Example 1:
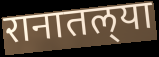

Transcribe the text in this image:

रानातल्या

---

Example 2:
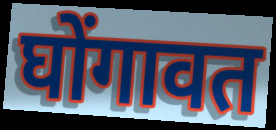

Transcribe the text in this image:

घोंगावत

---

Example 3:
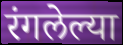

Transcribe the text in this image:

रंगलेल्या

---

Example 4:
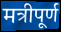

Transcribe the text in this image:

मत्रीपूर्ण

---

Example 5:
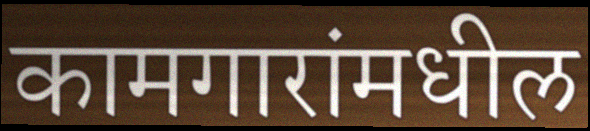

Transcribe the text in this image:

कामगारांमधील